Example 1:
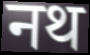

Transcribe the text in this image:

नथ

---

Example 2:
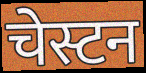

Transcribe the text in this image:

चेस्टन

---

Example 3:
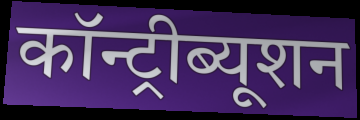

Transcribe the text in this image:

कॉन्ट्रीब्यूशन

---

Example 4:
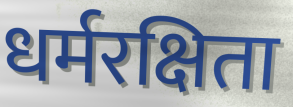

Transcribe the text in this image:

धर्मरक्षिता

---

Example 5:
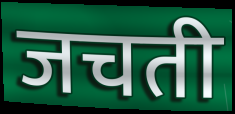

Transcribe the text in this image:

जचती